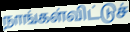
நாங்கள்விட்டுச்